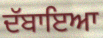
ਦੱਬਾਇਆ